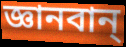
জ্ঞানবান্